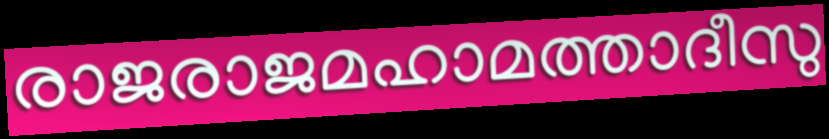
രാജരാജമഹാമത്താദീസു